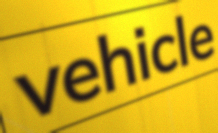
vehicle